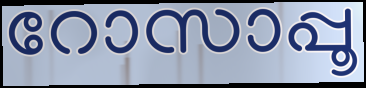
റോസാപ്പൂ